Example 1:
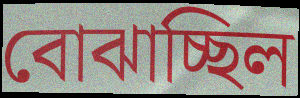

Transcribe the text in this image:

বোঝাচ্ছিল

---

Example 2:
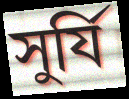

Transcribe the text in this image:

সুর্যি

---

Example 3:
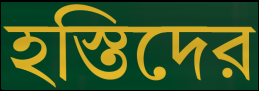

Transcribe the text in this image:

হস্তিদের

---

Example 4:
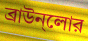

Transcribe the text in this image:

ব্রাউন্লোর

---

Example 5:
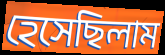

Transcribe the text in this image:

হেসেছিলাম